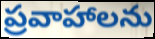
ప్రవాహాలను